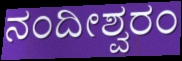
ನಂದೀಶ್ವರಂ